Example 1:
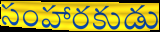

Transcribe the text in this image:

సంహారకుడు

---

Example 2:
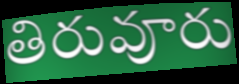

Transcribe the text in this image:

తిరువూరు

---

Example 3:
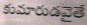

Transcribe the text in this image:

కుమారుడవైతే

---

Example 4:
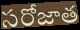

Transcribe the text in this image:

సరోజాత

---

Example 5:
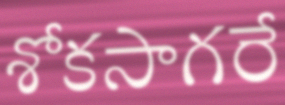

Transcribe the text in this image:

శోకసాగరే